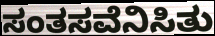
ಸಂತಸವೆನಿಸಿತು